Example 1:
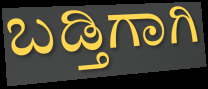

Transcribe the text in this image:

ಬಡ್ತಿಗಾಗಿ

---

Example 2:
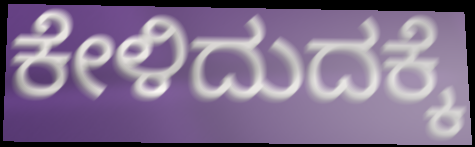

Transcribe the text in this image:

ಕೇಳಿದುದಕ್ಕೆ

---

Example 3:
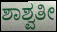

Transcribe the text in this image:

ಶಾಶ್ವತೀ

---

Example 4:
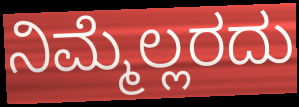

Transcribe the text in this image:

ನಿಮ್ಮೆಲ್ಲರದು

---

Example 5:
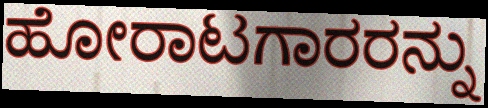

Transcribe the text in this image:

ಹೋರಾಟಗಾರರನ್ನು